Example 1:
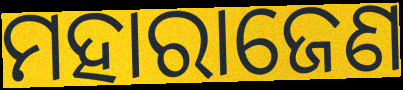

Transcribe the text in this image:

ମହାରାଜେଣ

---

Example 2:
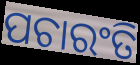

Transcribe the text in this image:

ପଚାରଂତି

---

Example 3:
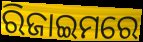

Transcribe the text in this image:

ରିଜାଇମରେ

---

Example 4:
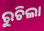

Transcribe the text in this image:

ରୁଚିଲା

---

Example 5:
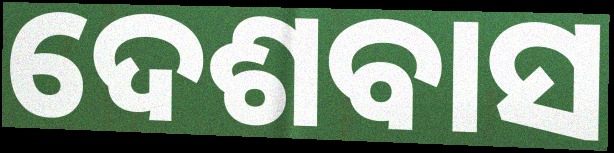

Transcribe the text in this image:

ଦେଶବାସ